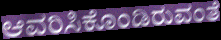
ಆವರಿಸಿಕೊಂಡಿರುವಂತೆ